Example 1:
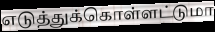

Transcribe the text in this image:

எடுத்துக்கொள்ளட்டுமா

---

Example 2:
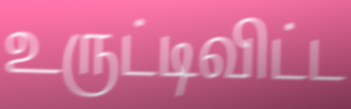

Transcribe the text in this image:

உருட்டிவிட்ட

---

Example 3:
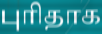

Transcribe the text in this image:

புரிதாக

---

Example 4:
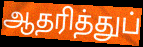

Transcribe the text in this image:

ஆதரித்துப்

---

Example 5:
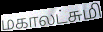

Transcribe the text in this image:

மகாலட்சுமி